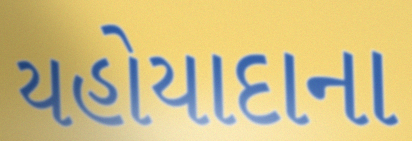
યહોયાદાના